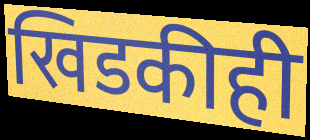
खिडकीही